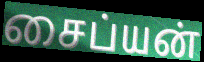
சைப்யன்